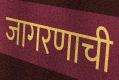
जागरणाची